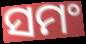
ସମଂ